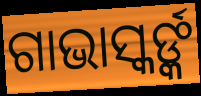
ଗାଭାସ୍କର୍ଙ୍କ